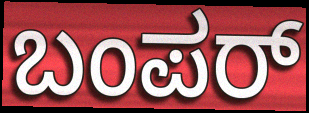
ಬಂಪರ್